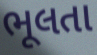
ભૂલતા